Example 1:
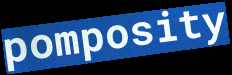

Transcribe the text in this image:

pomposity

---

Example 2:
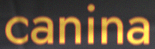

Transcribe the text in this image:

canina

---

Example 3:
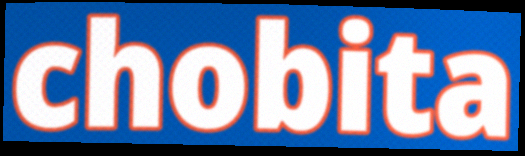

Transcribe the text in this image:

chobita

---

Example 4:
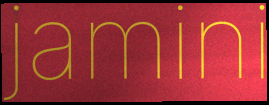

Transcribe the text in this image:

jamini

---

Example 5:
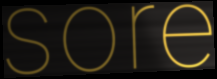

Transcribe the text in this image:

sore